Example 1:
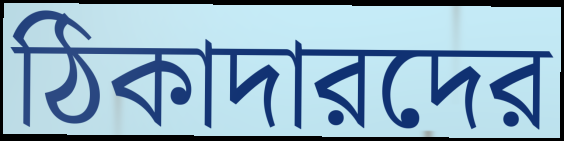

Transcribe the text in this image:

ঠিকাদারদের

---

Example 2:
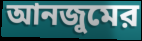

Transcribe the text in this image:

আনজুমের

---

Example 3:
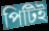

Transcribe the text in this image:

পিটিই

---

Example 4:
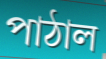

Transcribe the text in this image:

পাঠাল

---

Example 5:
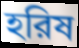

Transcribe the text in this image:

হরিষ